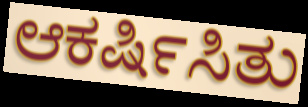
ಆಕರ್ಷಿಸಿತು